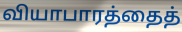
வியாபாரத்தைத்